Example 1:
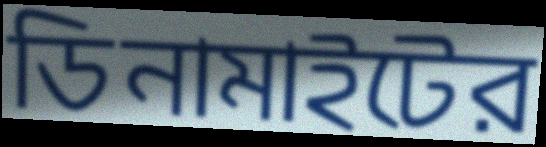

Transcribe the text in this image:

ডিনামাইটের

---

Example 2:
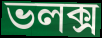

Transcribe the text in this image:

ভলক্স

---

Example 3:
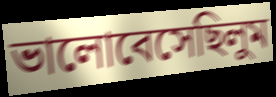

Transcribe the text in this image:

ভালোবেসেছিলুম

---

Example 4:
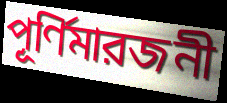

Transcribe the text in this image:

পূর্ণিমারজনী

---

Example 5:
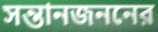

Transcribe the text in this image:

সন্তানজননের